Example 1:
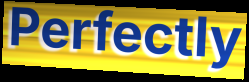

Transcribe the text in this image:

Perfectly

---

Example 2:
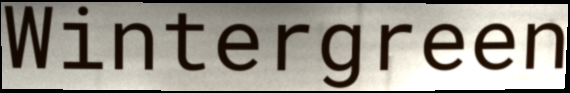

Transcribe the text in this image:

Wintergreen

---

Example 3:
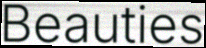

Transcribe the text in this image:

Beauties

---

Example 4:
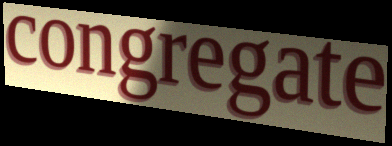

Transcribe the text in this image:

congregate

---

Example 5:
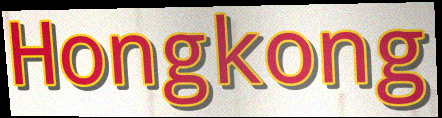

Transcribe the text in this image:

Hongkong